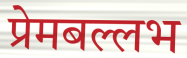
प्रेमबल्लभ